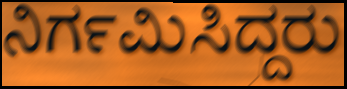
ನಿರ್ಗಮಿಸಿದ್ದರು